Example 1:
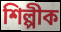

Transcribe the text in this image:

শিল্পীক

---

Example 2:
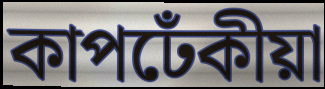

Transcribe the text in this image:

কাপঢেঁকীয়া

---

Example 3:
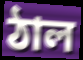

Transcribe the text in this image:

ঠাল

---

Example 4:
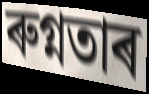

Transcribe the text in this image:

ৰুগ্নতাৰ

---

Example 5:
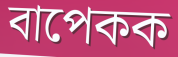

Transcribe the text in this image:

বাপেকক